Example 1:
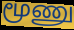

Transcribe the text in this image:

மூணு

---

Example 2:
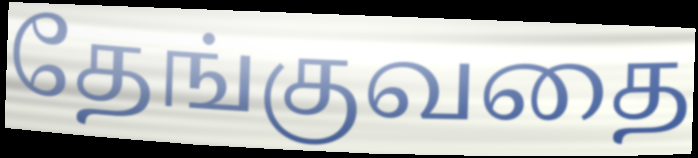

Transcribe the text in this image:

தேங்குவதை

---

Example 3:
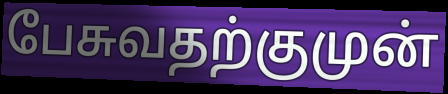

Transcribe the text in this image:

பேசுவதற்குமுன்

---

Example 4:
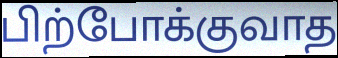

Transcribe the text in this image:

பிற்போக்குவாத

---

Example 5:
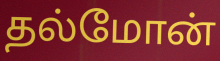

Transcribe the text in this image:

தல்மோன்